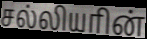
சல்லியரின்